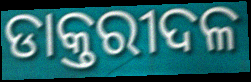
ଡାକ୍ତରୀଦଳ